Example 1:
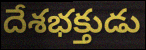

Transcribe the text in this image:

దేశభక్తుడు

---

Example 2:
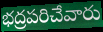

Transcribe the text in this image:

భద్రపరిచేవారు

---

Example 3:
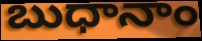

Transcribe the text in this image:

బుధానాం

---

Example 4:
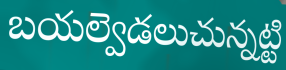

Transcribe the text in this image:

బయల్వెడలుచున్నట్టి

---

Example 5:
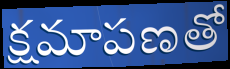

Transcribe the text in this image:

క్షమాపణతో